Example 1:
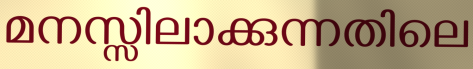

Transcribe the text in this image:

മനസ്സിലാക്കുന്നതിലെ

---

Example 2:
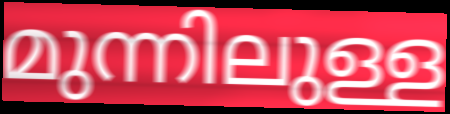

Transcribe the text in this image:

മുന്നിലുള്ള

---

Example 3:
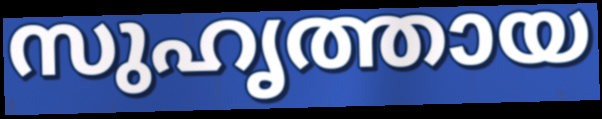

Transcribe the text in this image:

സുഹൃത്തായ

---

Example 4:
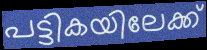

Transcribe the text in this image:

പട്ടികയിലേക്ക്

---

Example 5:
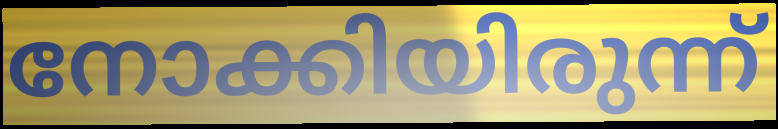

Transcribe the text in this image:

നോക്കിയിരുന്ന്